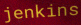
jenkins